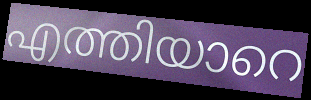
എത്തിയാറെ